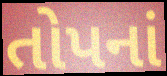
તોપનાં